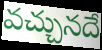
వచ్చునదే